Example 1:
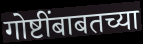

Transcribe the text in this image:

गोष्टींबाबतच्या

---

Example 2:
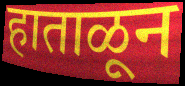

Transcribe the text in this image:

हाताळून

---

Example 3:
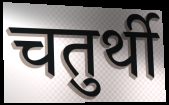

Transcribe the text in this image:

चतुर्थी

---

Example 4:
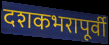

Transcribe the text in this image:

दशकभरापूर्वी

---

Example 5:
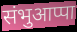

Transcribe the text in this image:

संभुआप्पा